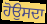
ਹੋਉਸਦਾ